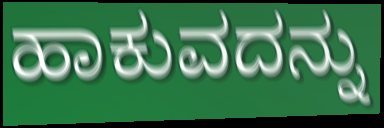
ಹಾಕುವದನ್ನು